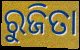
ରୁଜିତା